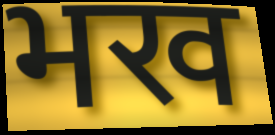
भख